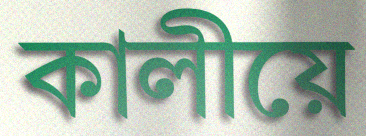
কালীয়ে